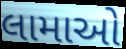
લામાઓ